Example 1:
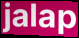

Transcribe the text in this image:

jalap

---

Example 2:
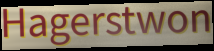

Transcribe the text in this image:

Hagerstwon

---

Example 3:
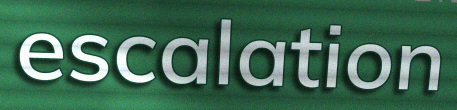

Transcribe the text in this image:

escalation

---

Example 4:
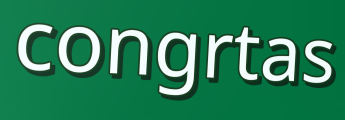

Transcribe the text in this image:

congrtas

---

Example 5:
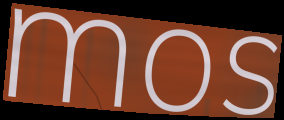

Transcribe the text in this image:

mos